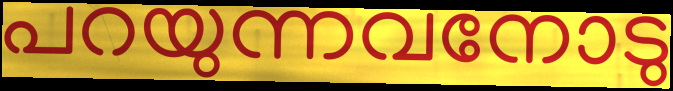
പറയുന്നവനോടു